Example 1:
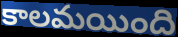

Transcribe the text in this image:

కాలమయింది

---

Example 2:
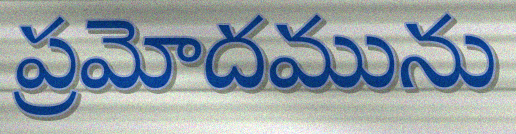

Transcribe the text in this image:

ప్రమోదమును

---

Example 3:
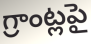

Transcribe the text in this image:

గ్రాంట్లపై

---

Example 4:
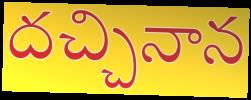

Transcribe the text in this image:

దచ్చినాన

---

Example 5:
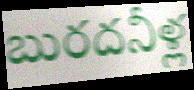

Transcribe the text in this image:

బురదనీళ్ల